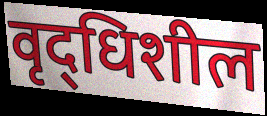
वृद्धिशील